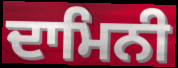
ਦਾਮਿਨੀ